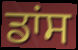
ਡਾਂਸ